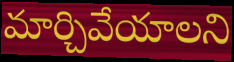
మార్చివేయాలని